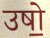
उषो॒